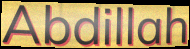
Abdillah